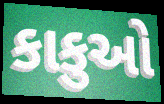
કાકુઓ